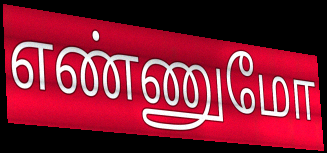
எண்ணுமோ